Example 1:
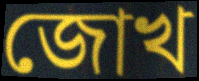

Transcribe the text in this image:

জোখ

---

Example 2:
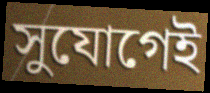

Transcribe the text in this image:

সুযোগেই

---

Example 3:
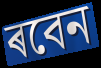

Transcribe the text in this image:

ৰবেন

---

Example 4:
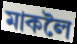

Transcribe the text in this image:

মাকলৈ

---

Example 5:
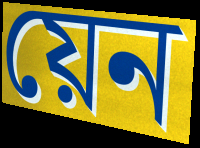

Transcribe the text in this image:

য়েন